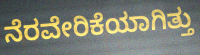
ನೆರವೇರಿಕೆಯಾಗಿತ್ತು